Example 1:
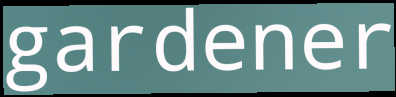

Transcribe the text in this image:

gardener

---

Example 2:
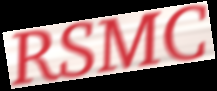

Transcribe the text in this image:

RSMC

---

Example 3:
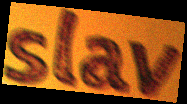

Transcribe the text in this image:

slav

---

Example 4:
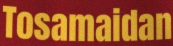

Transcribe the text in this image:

Tosamaidan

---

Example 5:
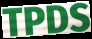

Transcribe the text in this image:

TPDS